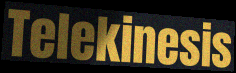
Telekinesis